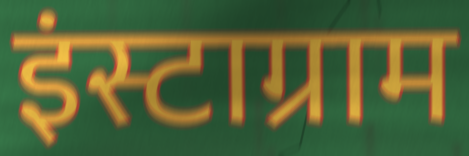
इंस्टाग्राम